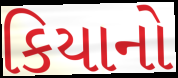
કિયાનો